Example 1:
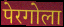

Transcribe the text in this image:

पेरगोला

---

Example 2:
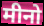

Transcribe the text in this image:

मीनो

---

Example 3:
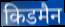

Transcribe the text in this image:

किडमैन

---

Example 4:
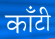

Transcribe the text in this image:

काँटी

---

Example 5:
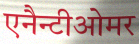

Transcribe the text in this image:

एनैन्टीओमर